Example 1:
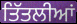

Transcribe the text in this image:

ਤਿੱਤਲੀਆਂ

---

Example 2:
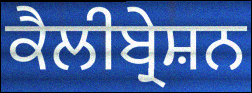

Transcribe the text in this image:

ਕੈਲੀਬ੍ਰੇਸ਼ਨ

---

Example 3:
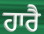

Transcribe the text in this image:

ਹਾਰੈ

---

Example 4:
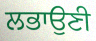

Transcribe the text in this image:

ਲਭਾਉਣੀ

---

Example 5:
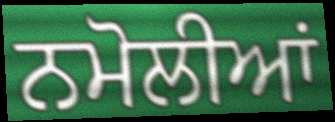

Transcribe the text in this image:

ਨਮੋਲੀਆਂ